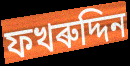
ফখৰুদ্দিন